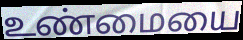
உண்மையை